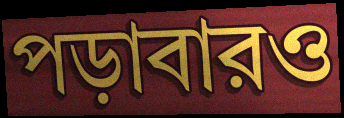
পড়াবারও